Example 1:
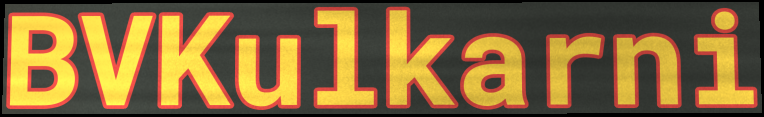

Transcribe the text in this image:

BVKulkarni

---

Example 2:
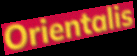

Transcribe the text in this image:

Orientalis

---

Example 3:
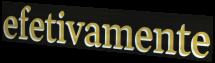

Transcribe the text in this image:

efetivamente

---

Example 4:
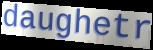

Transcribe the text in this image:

daughetr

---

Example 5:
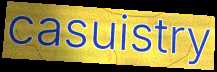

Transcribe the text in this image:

casuistry